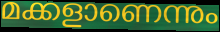
മക്കളാണെന്നും